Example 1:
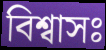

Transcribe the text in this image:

বিশ্বাসঃ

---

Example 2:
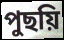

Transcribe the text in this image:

পুছয়ি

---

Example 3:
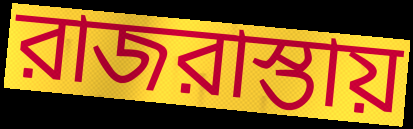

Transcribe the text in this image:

রাজরাস্তায়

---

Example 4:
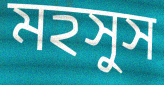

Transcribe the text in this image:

মহসুস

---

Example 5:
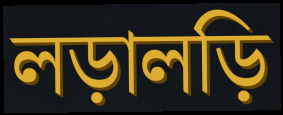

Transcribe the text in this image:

লড়ালড়ি